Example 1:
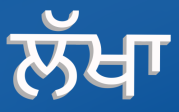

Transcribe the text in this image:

ਲੱਖਾ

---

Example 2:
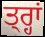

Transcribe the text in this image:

ਤ੍ਰ੍ਹਾਂ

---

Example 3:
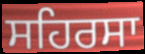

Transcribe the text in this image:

ਸਹਿਰਸਾ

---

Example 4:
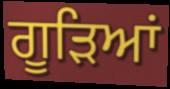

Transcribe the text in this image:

ਗੂੜਿਆਂ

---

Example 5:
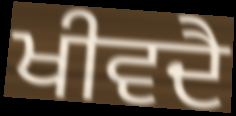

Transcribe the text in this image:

ਖੀਵਦੈ